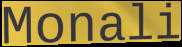
Monali